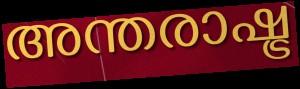
അന്തരാഷ്ട്ര